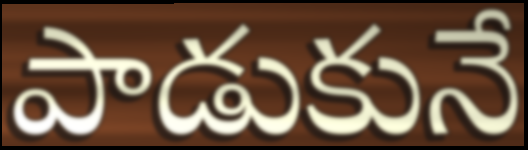
పాడుకునే